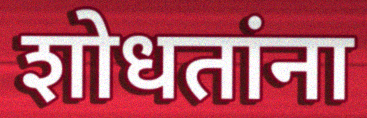
शोधतांना